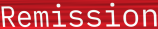
Remission